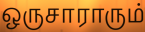
ஒருசாராரும்